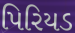
પિરિયડ